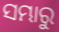
ସମ୍ଭାରୁ